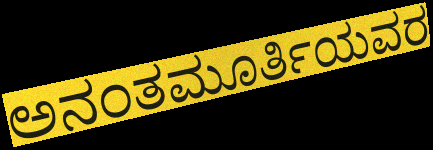
ಅನಂತಮೂರ್ತಿಯವರ